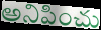
అనిపించు